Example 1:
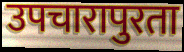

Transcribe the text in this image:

उपचारापुरता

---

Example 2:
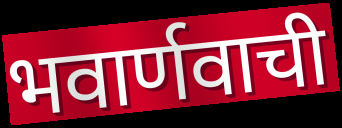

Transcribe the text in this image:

भवार्णवाची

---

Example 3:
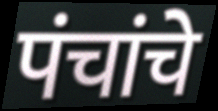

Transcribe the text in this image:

पंचांचे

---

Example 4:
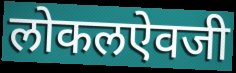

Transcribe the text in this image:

लोकलऐवजी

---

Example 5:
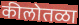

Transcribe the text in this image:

कीलोतळा